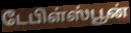
டேபிள்ஸ்பூன்